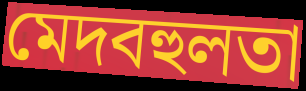
মেদবহুলতা